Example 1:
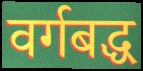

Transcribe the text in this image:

वर्गबद्ध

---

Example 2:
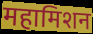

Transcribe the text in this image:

महामिशन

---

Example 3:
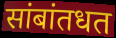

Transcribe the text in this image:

सांबांतधत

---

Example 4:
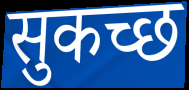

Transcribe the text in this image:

सुकच्छ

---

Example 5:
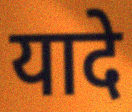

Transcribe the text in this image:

यादे